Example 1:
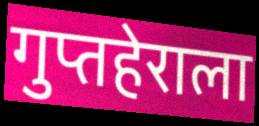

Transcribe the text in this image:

गुप्तहेराला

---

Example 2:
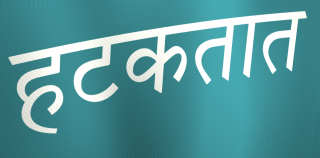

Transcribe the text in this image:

हटकतात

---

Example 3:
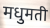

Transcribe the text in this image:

मधुमती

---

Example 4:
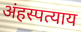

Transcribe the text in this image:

अंहस्पत्याय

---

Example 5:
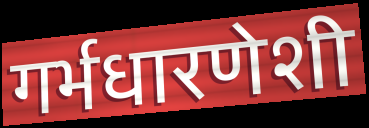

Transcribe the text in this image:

गर्भधारणेशी